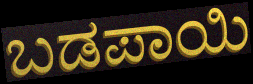
ಬಡಪಾಯಿ